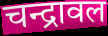
चन्द्रावल